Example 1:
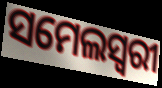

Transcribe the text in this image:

ସମେଲସ୍ୱରୀ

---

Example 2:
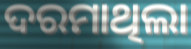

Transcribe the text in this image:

ଦରମାଥିଲା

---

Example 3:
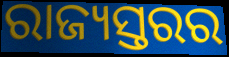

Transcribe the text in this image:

ରାଜ୍ୟସ୍ତରର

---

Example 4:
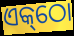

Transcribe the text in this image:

ଏକ୍‌ଠୋ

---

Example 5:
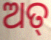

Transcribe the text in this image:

ଅତ୍